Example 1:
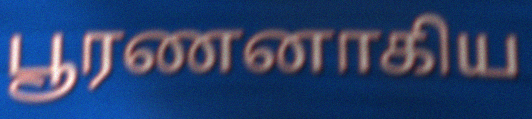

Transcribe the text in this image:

பூரணனாகிய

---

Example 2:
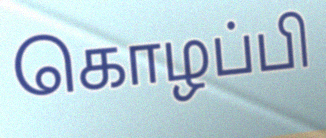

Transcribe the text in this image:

கொழப்பி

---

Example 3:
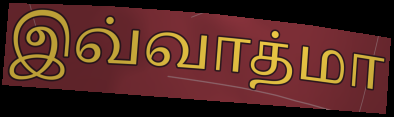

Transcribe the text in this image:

இவ்வாத்மா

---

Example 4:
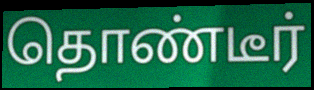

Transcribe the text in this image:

தொண்டீர்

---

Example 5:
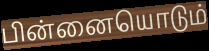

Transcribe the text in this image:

பின்னையொடும்